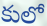
కులో